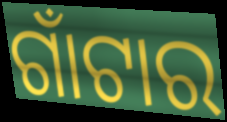
ଗାଁଟାର